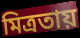
মিত্রতায়